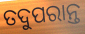
ତଦୁପରାନ୍ତ